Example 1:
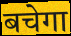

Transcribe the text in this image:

बचेगा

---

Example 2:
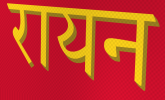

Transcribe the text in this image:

रायन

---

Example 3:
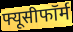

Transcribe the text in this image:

फ्यूसीफॉर्म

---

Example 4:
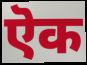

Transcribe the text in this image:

ऎक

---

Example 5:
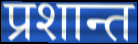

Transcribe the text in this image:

प्रशान्त